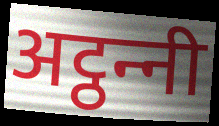
अट्ठन्नी